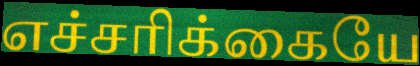
எச்சரிக்கையே